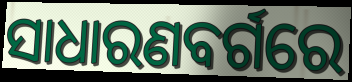
ସାଧାରଣବର୍ଗରେ